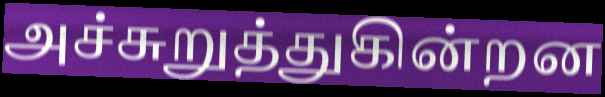
அச்சுறுத்துகின்றன